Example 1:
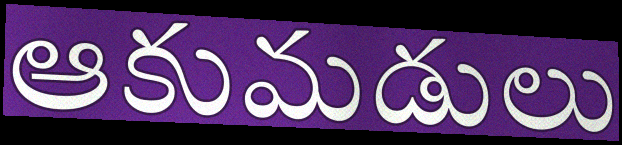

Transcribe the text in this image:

ఆకుమడులు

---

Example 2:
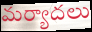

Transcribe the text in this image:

మర్యాదలు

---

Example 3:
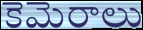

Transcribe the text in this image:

కెమెరాలు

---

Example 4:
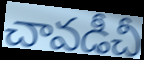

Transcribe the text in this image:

చావడీచీ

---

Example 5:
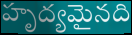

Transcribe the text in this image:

హృద్యమైనది